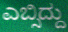
ಎಬ್ಸಿದ್ದು